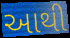
આથી